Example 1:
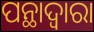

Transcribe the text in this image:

ପନ୍ଥାଦ୍ୱାରା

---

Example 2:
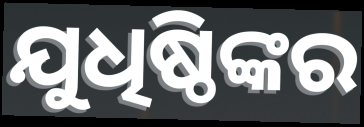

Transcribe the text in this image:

ଯୁଧିଷ୍ଠିଙ୍କର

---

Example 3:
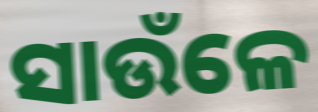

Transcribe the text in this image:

ସାଉଁଳେ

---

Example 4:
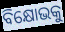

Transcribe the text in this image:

ବିକ୍ଷୋଭକୁ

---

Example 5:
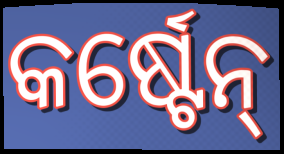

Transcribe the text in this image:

କର୍ଷ୍ଟେନ୍